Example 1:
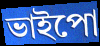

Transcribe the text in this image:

ভাইপো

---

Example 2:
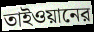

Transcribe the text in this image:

তাইওয়ানের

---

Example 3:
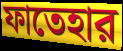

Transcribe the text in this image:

ফাতেহার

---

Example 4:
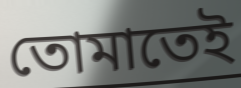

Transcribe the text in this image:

তোমাতেই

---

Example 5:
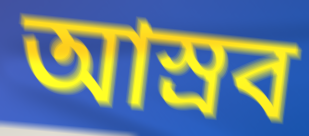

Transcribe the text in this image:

আস্রব